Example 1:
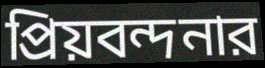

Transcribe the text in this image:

প্রিয়বন্দনার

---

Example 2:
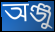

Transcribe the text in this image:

অঞ্জু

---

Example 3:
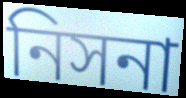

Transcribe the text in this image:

নিসনা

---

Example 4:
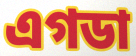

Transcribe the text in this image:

এগডা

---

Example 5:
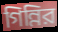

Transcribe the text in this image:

গিন্নির